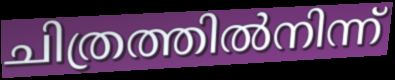
ചിത്രത്തിൽനിന്ന്